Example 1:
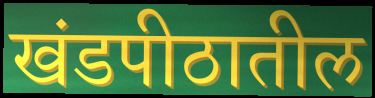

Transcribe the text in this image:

खंडपीठातील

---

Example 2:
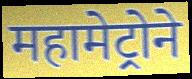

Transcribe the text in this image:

महामेट्रोने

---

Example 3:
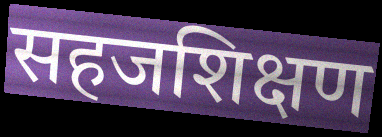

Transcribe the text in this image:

सहजशिक्षण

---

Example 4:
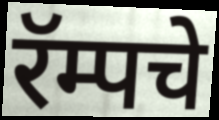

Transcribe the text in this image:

रॅम्पचे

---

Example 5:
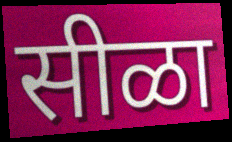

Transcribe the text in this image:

सीळा